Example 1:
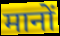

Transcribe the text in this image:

मानों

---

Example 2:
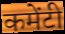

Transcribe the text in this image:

कमेंटी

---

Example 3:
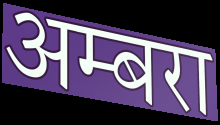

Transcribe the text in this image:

अम्बरा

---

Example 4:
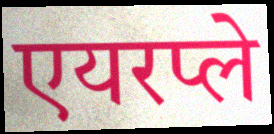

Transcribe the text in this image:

एयरप्ले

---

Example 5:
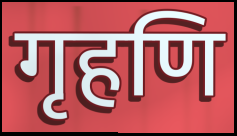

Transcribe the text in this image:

गृहणि